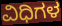
ವಿಧಿಗಳ